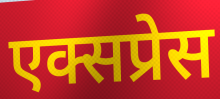
एक्सप्रेस